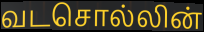
வடசொல்லின்